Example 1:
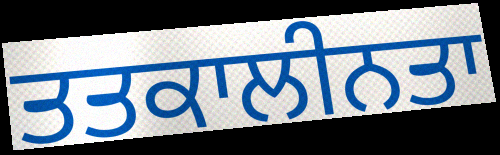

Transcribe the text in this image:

ਤਤਕਾਲੀਨਤਾ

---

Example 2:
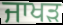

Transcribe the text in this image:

ਜਾਖੜ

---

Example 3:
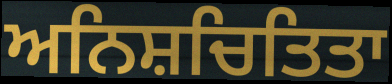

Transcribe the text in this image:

ਅਨਿਸ਼ਚਿਤਿਤਾ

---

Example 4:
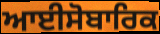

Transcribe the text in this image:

ਆਈਸੋਬਾਰਿਕ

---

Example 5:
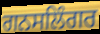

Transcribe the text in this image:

ਗਨਸਲਿੰਗਰ